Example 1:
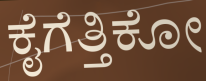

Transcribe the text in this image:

ಕೈಗೆತ್ತಿಕೋ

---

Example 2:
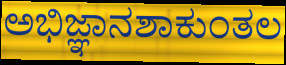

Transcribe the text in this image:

ಅಭಿಜ್ಞಾನಶಾಕುಂತಲ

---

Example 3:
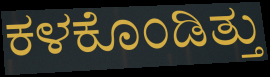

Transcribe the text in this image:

ಕಳಕೊಂಡಿತ್ತು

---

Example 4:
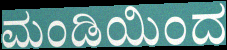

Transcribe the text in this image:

ಮಂಡಿಯಿಂದ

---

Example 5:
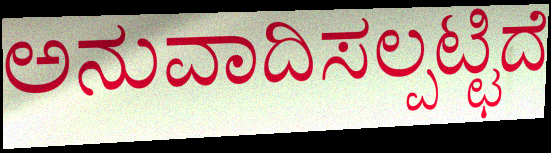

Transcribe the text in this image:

ಅನುವಾದಿಸಲ್ಪಟ್ಟಿದೆ